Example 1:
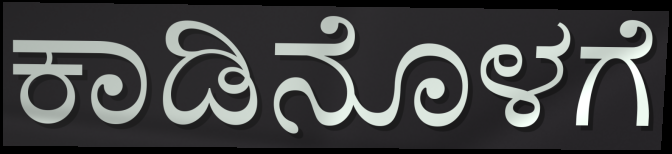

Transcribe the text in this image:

ಕಾಡಿನೊಳಗೆ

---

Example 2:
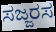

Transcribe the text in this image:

ಸಜ್ಜರಸ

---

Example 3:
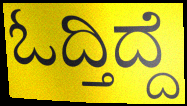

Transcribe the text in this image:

ಓದ್ತಿದ್ದೆ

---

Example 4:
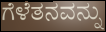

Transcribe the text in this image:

ಗೆಳೆತನವನ್ನು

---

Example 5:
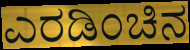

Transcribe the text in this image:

ಎರಡಿಂಚಿನ